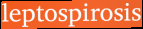
leptospirosis